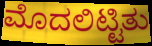
ಮೊದಲಿಟ್ಟಿತು